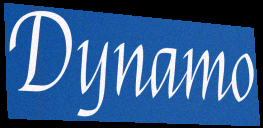
Dynamo